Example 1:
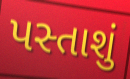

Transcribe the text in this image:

પસ્તાશું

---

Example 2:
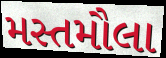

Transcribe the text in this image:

મસ્તમૌલા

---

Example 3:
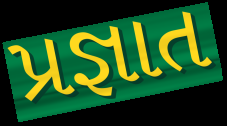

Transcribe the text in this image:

પ્રજ્ઞાત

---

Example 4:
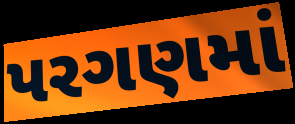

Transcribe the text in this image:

પરગણમાં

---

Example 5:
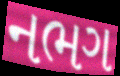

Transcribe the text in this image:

નભગ